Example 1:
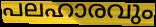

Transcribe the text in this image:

പലഹാരവും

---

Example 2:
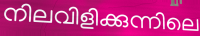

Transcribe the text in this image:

നിലവിളിക്കുന്നിലെ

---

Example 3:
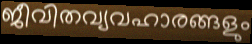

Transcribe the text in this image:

ജീവിതവ്യവഹാരങ്ങളും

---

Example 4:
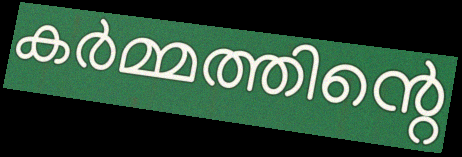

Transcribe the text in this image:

കർമ്മത്തിന്റെ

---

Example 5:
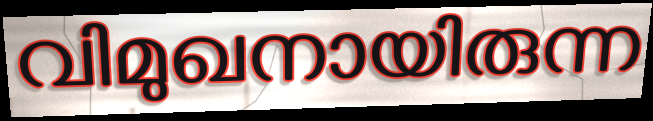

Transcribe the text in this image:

വിമുഖനായിരുന്ന